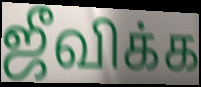
ஜீவிக்க